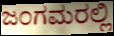
ಜಂಗಮರಲ್ಲಿ